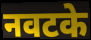
नवटके